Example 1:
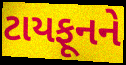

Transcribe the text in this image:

ટાયફૂનને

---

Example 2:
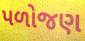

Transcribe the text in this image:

પળોજણ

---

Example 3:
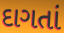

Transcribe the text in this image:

દાગતાં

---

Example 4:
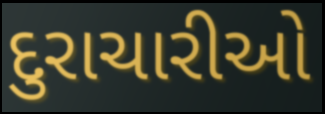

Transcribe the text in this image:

દુરાચારીઓ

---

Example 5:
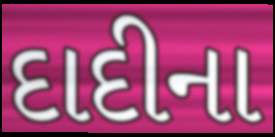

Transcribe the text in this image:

દાદીના